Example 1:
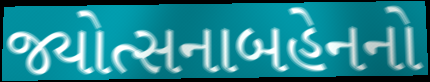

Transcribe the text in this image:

જ્યોત્સનાબહેનનો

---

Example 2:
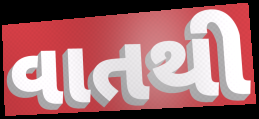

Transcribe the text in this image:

વાતથી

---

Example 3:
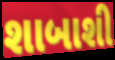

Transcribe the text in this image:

શાબાશી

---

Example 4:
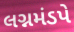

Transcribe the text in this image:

લગ્નમંડપે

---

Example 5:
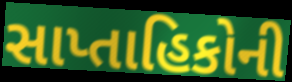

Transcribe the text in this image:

સાપ્તાહિકોની